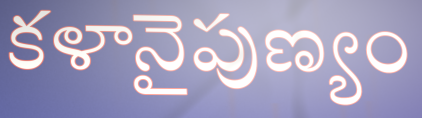
కళానైపుణ్యం